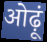
ओढ़ूं